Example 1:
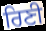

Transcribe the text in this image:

ਰਿਣੀ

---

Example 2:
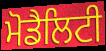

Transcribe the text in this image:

ਮੋਡੈਲਿਟੀ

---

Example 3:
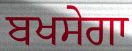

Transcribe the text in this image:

ਬਖਸੇਗਾ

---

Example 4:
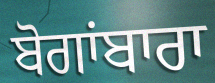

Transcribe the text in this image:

ਬੋਗਾਂਬਾਰਾ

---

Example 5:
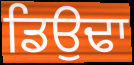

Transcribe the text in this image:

ਡਿਉਢਾ